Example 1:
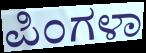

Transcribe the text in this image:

ಪಿಂಗಳಾ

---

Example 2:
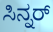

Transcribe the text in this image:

ಸಿನ್ನರ್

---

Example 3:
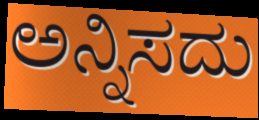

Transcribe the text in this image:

ಅನ್ನಿಸದು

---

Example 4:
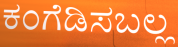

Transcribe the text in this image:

ಕಂಗೆಡಿಸಬಲ್ಲ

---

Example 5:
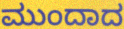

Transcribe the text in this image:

ಮುಂದಾದ